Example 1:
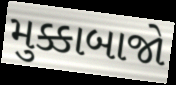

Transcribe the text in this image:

મુક્કાબાજો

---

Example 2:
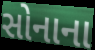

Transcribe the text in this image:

સોનાના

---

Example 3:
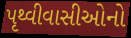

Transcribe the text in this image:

પૃથ્વીવાસીઓનો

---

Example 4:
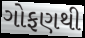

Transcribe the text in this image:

ગોફણથી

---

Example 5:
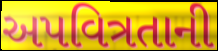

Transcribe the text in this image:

અપવિત્રતાની